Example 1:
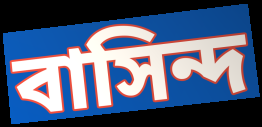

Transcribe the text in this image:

বাসিন্দ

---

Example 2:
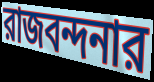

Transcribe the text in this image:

রাজবন্দনার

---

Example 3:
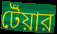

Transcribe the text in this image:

টেঁয়ার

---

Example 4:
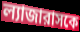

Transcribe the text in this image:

ল্যাজারাসকে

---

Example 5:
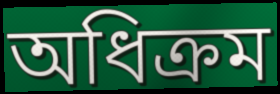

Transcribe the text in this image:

অধিক্রম